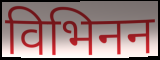
विभिनन